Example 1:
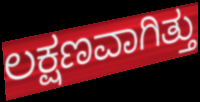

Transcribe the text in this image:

ಲಕ್ಷಣವಾಗಿತ್ತು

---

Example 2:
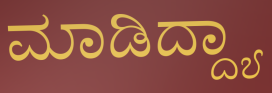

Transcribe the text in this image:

ಮಾಡಿದ್ದ್ಯಾ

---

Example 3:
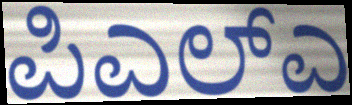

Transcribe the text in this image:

ಪಿಎಲ್ಎ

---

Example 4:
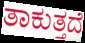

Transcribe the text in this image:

ತಾಕುತ್ತದೆ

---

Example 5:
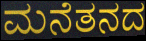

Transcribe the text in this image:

ಮನೆತನದ